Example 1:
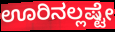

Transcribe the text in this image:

ಊರಿನಲ್ಲಷ್ಟೇ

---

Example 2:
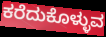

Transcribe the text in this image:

ಕರೆದುಕೊಳ್ಳುವ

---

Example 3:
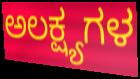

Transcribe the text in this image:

ಅಲಕ್ಷ್ಯಗಳ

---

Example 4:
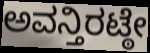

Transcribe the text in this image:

ಅವನ್ತಿರಟ್ಠೇ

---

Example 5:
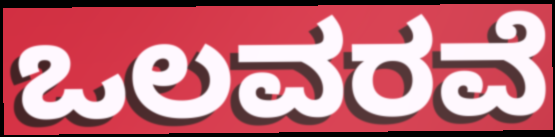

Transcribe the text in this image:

ಒಲವರವೆ